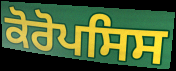
ਕੋਰੋਪਸਿਸ